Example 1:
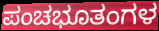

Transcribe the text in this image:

ಪಂಚಭೂತಂಗಳ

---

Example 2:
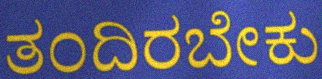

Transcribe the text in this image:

ತಂದಿರಬೇಕು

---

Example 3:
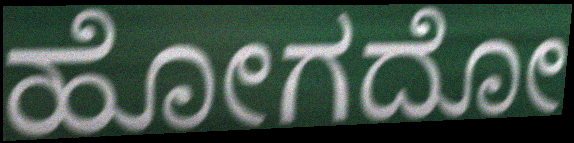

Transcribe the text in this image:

ಹೋಗದೋ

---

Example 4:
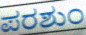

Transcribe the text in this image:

ಪರಶುಂ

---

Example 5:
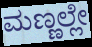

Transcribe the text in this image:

ಮಣ್ಣಲ್ಲೇ